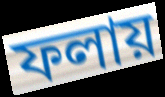
ফলায়